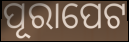
ପୂରାପେଟ